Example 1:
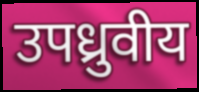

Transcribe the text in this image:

उपध्रुवीय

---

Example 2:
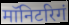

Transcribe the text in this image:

मॉनिटरिगं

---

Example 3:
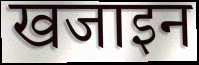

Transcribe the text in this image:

खजाइन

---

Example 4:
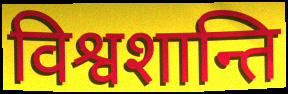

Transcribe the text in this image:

विश्वशान्ति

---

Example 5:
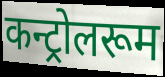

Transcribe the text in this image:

कन्ट्रोलरूम